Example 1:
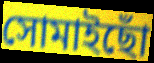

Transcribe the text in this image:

সোমাইছোঁ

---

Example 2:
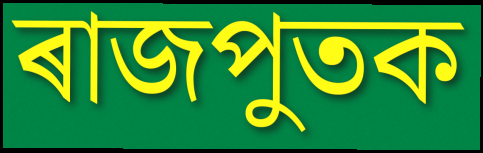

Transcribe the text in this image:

ৰাজপুতক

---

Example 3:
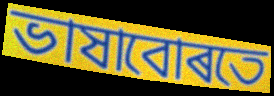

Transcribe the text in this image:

ভাষাবোৰতে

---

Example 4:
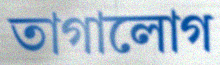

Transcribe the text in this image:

তাগালোগ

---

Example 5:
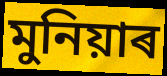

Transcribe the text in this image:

মুনিয়াৰ